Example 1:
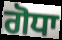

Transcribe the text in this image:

ਗੋਧਾ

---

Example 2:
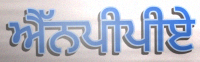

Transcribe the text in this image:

ਐੱਨਪੀਪੀਏ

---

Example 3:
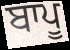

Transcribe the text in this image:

ਬਾਪੂ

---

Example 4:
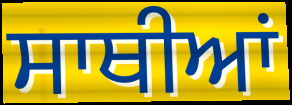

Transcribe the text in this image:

ਸਾਥੀਆਂ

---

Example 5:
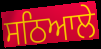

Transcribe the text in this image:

ਸਠਿਆਲੇ